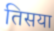
तिसया